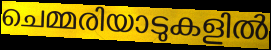
ചെമ്മരിയാടുകളിൽ